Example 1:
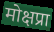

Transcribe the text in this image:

मोक्षप्रा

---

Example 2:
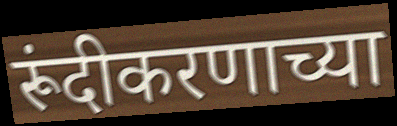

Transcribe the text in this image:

रूंदीकरणाच्या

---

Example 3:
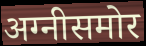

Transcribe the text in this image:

अग्नीसमोर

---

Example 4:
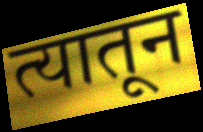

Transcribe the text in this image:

त्‍यातून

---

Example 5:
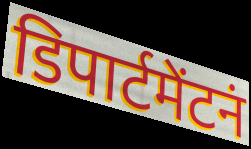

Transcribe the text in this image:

डिपार्टमेंटनं